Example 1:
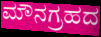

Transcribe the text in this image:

ಮೌನಗ್ರಹದ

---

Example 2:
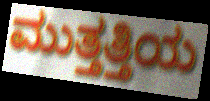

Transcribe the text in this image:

ಮುತ್ತತ್ತಿಯ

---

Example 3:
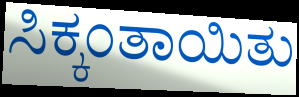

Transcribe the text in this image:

ಸಿಕ್ಕಂತಾಯಿತು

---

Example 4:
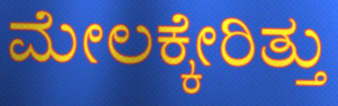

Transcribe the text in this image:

ಮೇಲಕ್ಕೇರಿತ್ತು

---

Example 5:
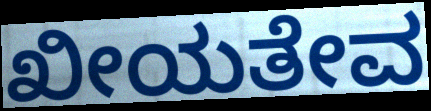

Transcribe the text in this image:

ಖೀಯತೇವ